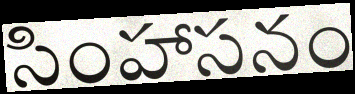
సింహాసనం